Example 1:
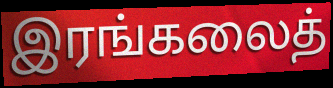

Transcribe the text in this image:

இரங்கலைத்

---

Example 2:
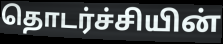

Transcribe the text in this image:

தொடர்ச்சியின்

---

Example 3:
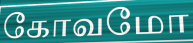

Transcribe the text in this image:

கோவமோ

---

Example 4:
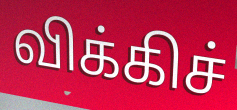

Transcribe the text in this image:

விக்கிச்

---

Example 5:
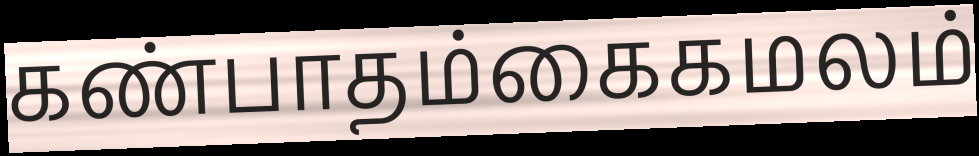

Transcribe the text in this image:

கண்பாதம்கைகமலம்